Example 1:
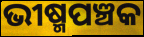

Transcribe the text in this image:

ଭୀଷ୍ମପଞ୍ଚକ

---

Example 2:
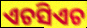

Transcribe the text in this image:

ଏଚସିଏଚ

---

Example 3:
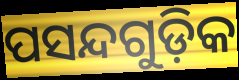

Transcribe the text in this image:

ପସନ୍ଦଗୁଡ଼ିକ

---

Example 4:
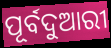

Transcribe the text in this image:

ପୂର୍ବଦୁଆରୀ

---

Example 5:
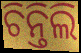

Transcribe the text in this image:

ଚିନ୍ତିଲି